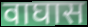
वाघास